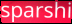
sparshi